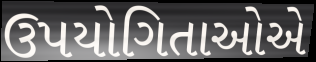
ઉપયોગિતાઓએ